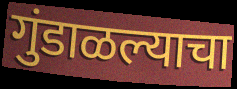
गुंडाळल्याचा